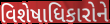
વિશેષાધિકારોને